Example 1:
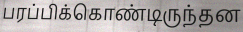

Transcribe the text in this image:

பரப்பிக்கொண்டிருந்தன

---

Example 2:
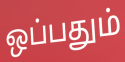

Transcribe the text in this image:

ஒப்பதும்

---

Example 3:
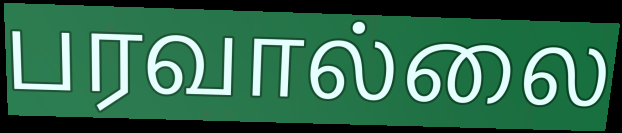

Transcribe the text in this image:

பரவால்லை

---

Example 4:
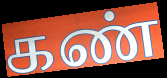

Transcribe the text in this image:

கண்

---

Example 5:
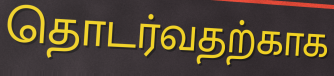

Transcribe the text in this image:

தொடர்வதற்காக